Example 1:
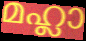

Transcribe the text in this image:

മഹ്ലാ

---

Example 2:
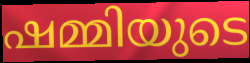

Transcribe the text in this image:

ഷമ്മിയുടെ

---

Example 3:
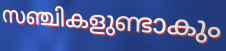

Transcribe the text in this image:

സഞ്ചികളുണ്ടാകും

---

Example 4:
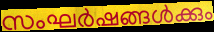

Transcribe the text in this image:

സംഘർഷങ്ങൾക്കും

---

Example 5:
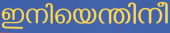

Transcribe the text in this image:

ഇനിയെന്തിനീ